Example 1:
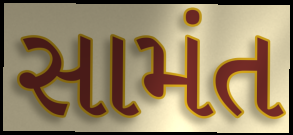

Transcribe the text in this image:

સામંત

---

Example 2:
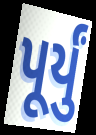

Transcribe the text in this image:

પૂર્યું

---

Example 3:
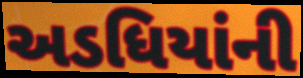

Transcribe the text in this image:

અડધિયાંની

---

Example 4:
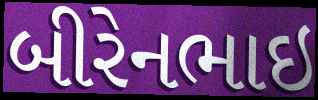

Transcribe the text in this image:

બીરેનભાઇ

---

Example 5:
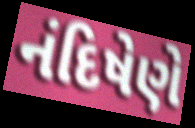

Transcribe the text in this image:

નંદિષેણે